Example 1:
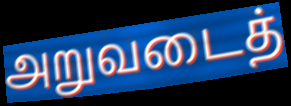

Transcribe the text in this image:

அறுவடைத்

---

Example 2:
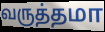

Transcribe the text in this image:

வருத்தமா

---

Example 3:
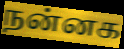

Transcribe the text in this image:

நன்னக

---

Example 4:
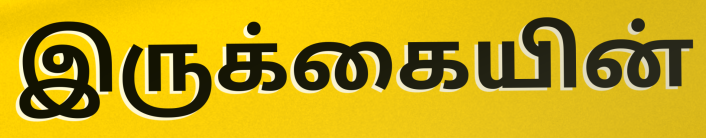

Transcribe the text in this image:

இருக்கையின்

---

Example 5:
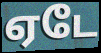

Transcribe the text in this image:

ஏடே